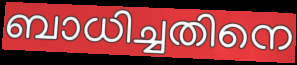
ബാധിച്ചതിനെ